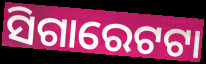
ସିଗାରେଟଟା